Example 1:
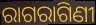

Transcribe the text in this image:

ରାଗରାଗିଣୀ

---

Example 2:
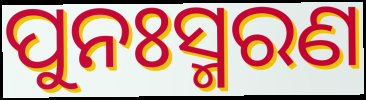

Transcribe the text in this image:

ପୁନଃସ୍ମରଣ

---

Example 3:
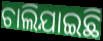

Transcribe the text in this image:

ଚାଲିଯାଇଛି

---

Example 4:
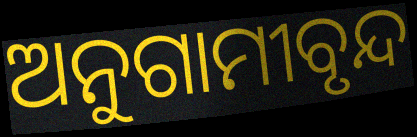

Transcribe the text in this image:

ଅନୁଗାମୀବୃନ୍ଦ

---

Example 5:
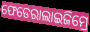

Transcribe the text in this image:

ଫେଡେରାଲାଇଜିମ୍ରେ